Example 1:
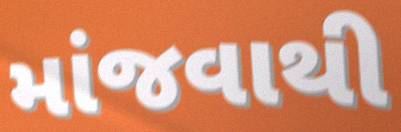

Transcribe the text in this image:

માંજવાથી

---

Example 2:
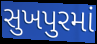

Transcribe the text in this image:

સુખપુરમાં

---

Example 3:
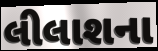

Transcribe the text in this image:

લીલાશના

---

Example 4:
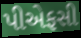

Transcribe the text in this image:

પીએફસી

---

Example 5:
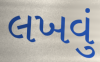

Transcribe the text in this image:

લખવું